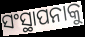
ସଂସ୍ଥାପନାକୁ